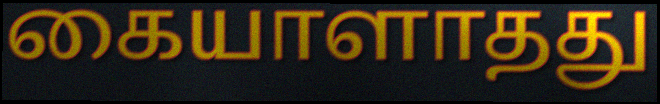
கையாளாதது